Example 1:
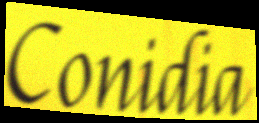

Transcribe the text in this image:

Conidia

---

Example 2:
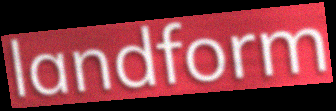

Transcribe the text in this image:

landform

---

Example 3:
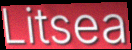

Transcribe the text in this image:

Litsea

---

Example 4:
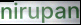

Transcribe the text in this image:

nirupan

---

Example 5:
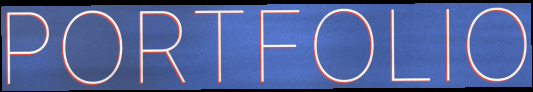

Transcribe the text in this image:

PORTFOLIO